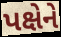
પક્ષેને